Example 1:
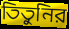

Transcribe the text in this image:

তিতুনির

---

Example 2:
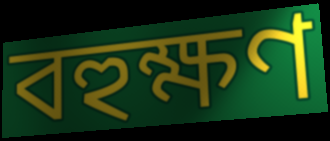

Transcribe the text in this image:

বহুক্ষণ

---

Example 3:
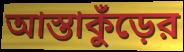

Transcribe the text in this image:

আস্তাকুঁড়ের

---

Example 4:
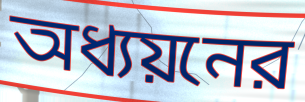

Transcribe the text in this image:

অধ্যয়নের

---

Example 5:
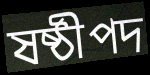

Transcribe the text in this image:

ষষ্ঠীপদ